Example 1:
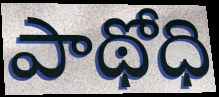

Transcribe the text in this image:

పాథోధి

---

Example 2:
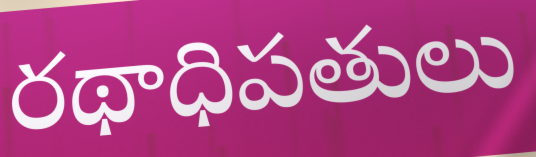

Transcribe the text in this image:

రథాధిపతులు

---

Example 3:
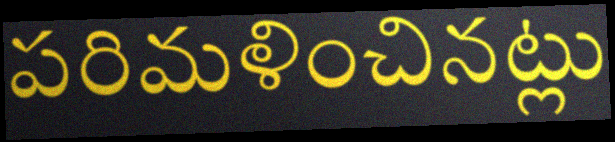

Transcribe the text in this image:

పరిమళించినట్లు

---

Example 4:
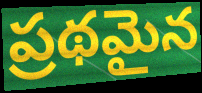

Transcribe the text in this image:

ప్రథమైన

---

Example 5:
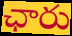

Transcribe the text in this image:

ఛారు